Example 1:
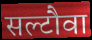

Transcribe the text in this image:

सल्टौवा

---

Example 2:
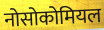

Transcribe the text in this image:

नोसोकोमियल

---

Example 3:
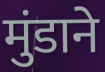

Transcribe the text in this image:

मुंडाने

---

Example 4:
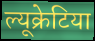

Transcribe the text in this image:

ल्यूक्रेटिया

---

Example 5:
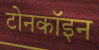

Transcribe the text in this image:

टोनकॉइन